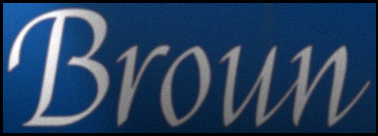
Broun